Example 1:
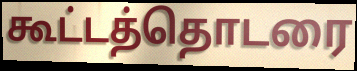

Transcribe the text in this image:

கூட்டத்தொடரை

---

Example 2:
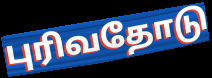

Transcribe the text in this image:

புரிவதோடு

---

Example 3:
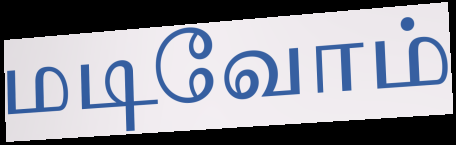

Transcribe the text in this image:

மடிவோம்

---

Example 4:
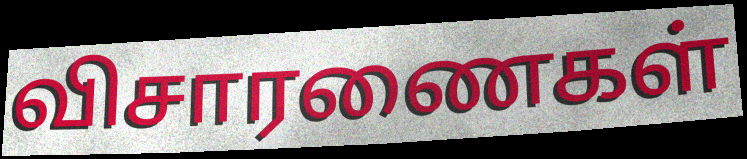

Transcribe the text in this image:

விசாரணைகள்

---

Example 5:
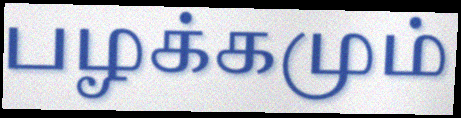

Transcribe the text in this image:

பழக்கமும்